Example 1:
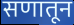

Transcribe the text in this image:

सणातून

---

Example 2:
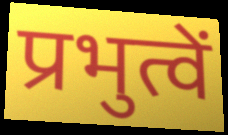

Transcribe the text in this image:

प्रभुत्वें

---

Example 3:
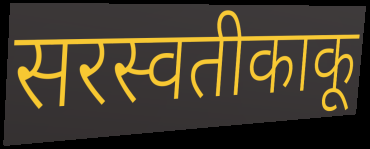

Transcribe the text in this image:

सरस्वतीकाकू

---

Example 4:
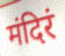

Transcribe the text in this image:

मंदिरं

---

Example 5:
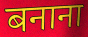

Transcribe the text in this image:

बनाना